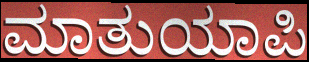
ಮಾತುಯಾಪಿ